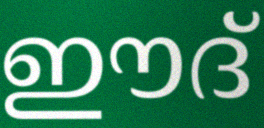
ഈദ്